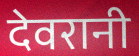
देवरानी